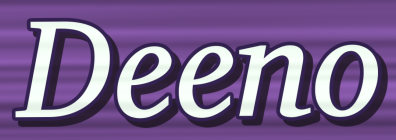
Deeno